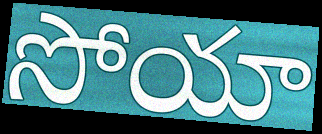
సోయా